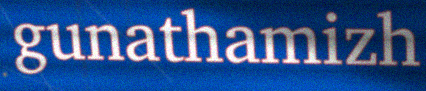
gunathamizh